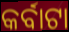
କର୍ବାଟା